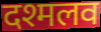
दश्मलव